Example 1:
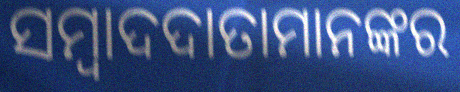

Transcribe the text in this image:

ସମ୍ବାଦଦାତାମାନଙ୍କର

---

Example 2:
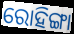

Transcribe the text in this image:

ରୋହିଙ୍ଗା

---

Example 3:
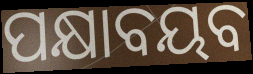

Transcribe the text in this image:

ପକ୍ଷାବୟବ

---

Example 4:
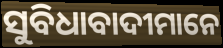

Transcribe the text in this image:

ସୁବିଧାବାଦୀମାନେ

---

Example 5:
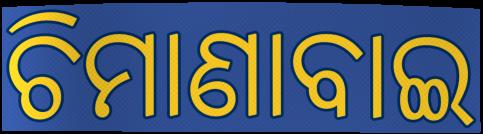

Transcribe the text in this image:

ଚିମାଣାବାଇ